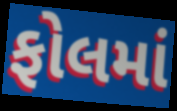
ફોલમાં